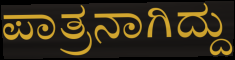
ಪಾತ್ರನಾಗಿದ್ದು